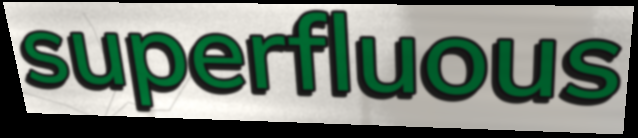
superfluous